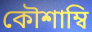
কৌশাম্বি